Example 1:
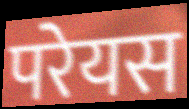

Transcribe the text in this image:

परेयस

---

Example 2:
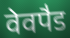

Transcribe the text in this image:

वेवपैड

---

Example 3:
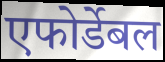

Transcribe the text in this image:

एफोर्डेबल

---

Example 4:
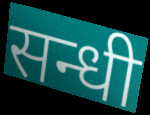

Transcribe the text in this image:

सन्धी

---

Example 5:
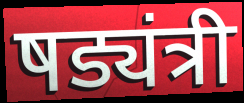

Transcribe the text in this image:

षड्यंत्री